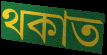
থকাত